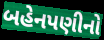
બહેનપણીનો